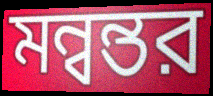
মন্বন্তর